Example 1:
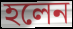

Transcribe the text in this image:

হলেন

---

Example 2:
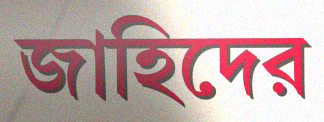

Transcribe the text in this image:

জাহিদের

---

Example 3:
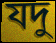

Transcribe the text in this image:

যদু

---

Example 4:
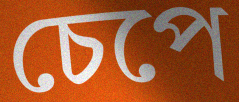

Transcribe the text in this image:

চেপে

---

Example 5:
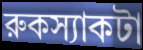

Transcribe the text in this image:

রুকস্যাকটা